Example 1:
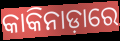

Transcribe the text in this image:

କାକିନାଡ଼ାରେ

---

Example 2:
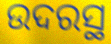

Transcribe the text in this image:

ଉଦରସ୍ଥ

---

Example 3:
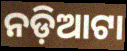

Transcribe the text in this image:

ନଡ଼ିଆଟା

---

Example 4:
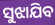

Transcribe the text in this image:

ସୁଝାଯିବ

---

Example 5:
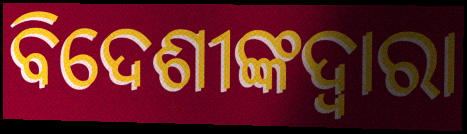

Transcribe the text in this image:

ବିଦେଶୀଙ୍କଦ୍ୱାରା